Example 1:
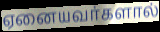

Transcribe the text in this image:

ஏனையவர்களால்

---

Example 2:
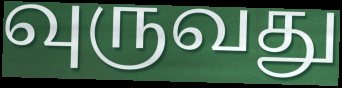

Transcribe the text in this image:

வுருவது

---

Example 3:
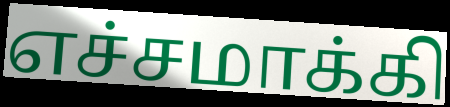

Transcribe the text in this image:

எச்சமாக்கி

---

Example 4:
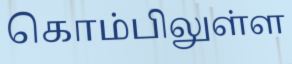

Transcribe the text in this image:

கொம்பிலுள்ள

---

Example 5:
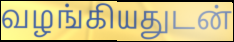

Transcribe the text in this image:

வழங்கியதுடன்